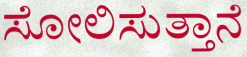
ಸೋಲಿಸುತ್ತಾನೆ